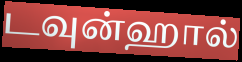
டவுன்ஹால்